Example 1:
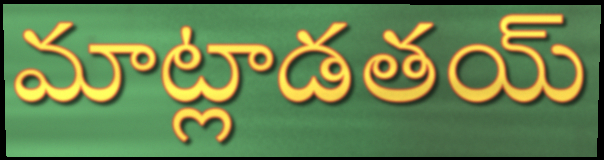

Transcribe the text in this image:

మాట్లాడతయ్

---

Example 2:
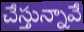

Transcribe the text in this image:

చేస్తున్నావే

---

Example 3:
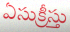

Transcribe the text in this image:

ఏసుక్రీస్తు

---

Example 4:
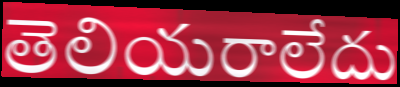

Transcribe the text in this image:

తెలియరాలేదు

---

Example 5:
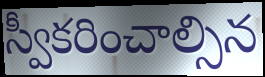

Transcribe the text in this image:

స్వీకరించాల్సిన